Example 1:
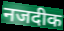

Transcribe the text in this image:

नजदीक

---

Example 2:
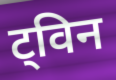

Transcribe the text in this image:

ट्विन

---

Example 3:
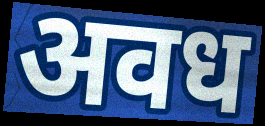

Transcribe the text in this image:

अवध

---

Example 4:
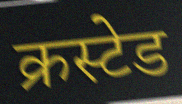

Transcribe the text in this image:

क्रस्टेड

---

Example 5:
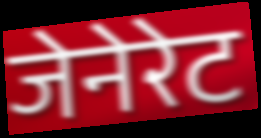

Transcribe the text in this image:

जेनेरेट